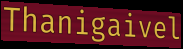
Thanigaivel